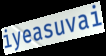
iyeasuvai